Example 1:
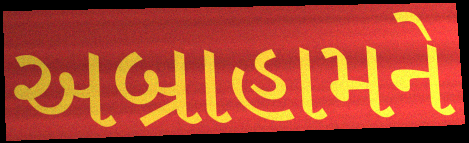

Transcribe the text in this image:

અબ્રાહામને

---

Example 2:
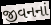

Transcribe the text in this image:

જીવનનાં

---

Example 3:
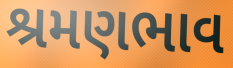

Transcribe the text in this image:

શ્રમણભાવ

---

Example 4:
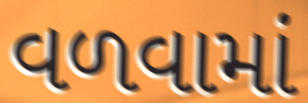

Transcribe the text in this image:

વળવામાં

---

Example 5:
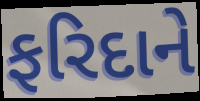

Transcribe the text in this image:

ફરિદાને